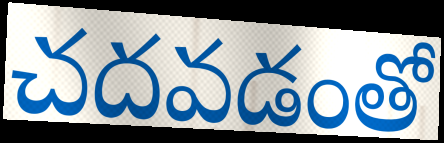
చదవడంతో